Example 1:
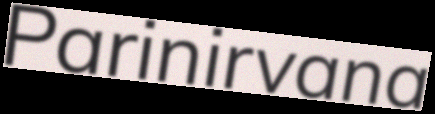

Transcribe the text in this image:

Parinirvana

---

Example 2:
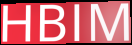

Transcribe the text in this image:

HBIM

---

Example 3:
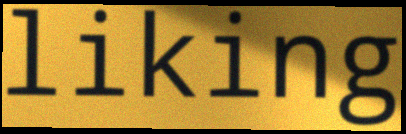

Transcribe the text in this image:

liking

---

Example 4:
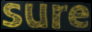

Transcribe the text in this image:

sure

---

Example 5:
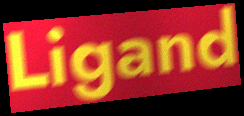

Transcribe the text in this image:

Ligand